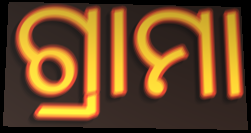
ଗ୍ରାମା